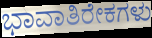
ಭಾವಾತಿರೇಕಗಳು